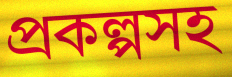
প্রকল্পসহ